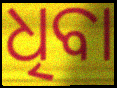
ଧିବା